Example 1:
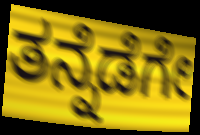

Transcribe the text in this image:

ತನ್ನೆಡೆಗೇ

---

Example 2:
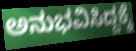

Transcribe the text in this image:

ಅನುಭವಿಸಿದ್ದಕ್ಕೆ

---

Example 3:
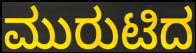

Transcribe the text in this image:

ಮುರುಟಿದ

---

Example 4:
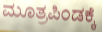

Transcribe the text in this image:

ಮೂತ್ರಪಿಂಡಕ್ಕೆ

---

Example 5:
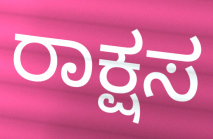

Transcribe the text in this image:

ರಾಕ್ಷಸ